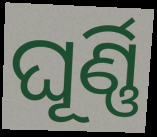
ଘୂର୍ଣ୍ଣି